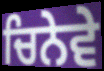
ਚਿਨੇਵੇ